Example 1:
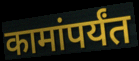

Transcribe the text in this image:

कामांपर्यंत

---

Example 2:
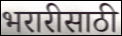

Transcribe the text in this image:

भरारीसाठी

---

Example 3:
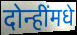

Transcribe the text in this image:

दोन्हींमधे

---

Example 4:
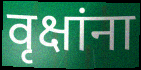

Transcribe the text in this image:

वृक्षांना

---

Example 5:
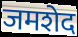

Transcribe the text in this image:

जमशेद